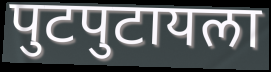
पुटपुटायला